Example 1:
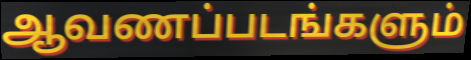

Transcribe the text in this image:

ஆவணப்படங்களும்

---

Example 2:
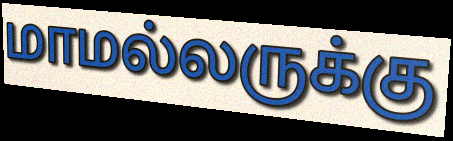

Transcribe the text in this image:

மாமல்லருக்கு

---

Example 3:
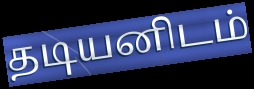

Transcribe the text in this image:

தடியனிடம்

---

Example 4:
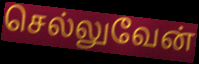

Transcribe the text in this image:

செல்லுவேன்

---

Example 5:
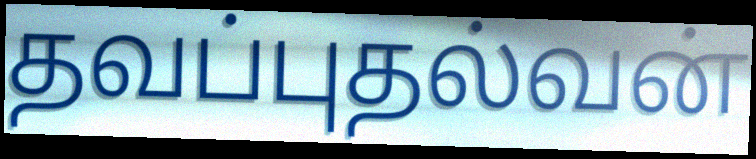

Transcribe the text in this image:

தவப்புதல்வன்